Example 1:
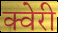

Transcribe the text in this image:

क्वेरी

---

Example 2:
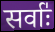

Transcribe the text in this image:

सर्वाः॑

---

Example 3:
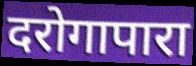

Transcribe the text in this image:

दरोगापारा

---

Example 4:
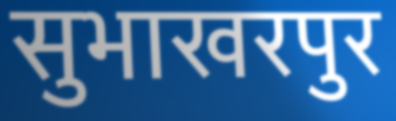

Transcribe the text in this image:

सुभाखरपुर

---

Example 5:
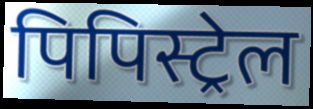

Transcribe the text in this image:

पिपिस्ट्रेल